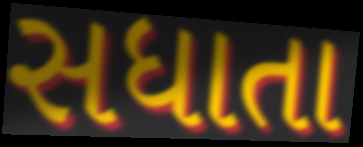
સધાતા